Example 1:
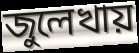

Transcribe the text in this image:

জুলেখায়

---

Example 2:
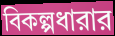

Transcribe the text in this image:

বিকল্পধারার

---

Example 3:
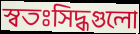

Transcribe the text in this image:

স্বতঃসিদ্ধগুলো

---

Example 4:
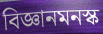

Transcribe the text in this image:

বিজ্ঞানমনস্ক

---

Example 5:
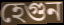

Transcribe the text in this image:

হেগুন